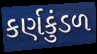
કર્ણકુંડળ